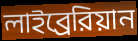
লাইব্রেরিয়ান